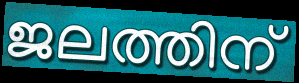
ജലത്തിന്